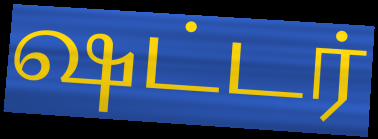
ஷட்டர்